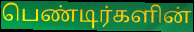
பெண்டிர்களின்